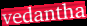
vedantha